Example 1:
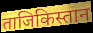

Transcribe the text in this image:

ताजिकिस्तान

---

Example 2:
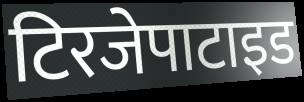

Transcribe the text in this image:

टिरजेपाटाइड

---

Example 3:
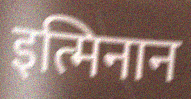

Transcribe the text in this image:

इत्मिनान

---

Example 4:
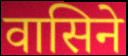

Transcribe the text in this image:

वासिने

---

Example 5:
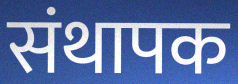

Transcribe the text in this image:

संथापक